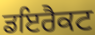
ਡਇਰੈਕਟ